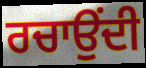
ਰਚਾਉਂਦੀ